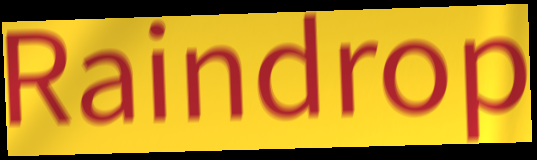
Raindrop